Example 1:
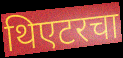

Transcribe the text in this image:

थिएटरचा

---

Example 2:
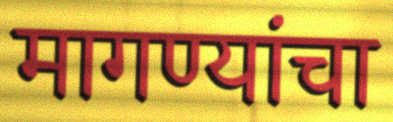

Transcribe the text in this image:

मागण्यांचा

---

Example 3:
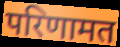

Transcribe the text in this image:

परिणामत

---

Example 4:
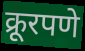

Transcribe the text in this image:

क्रूरपणे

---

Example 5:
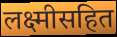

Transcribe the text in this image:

लक्ष्मीसहित